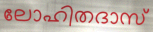
ലോഹിതദാസ്